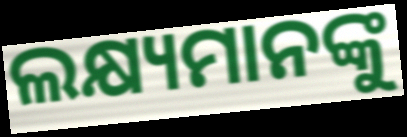
ଲକ୍ଷ୍ୟମାନଙ୍କୁ